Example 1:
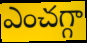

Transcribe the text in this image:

ఎంచగ్గా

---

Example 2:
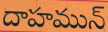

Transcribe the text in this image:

దాహమున్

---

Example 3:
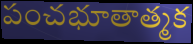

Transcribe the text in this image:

పంచభూతాత్మక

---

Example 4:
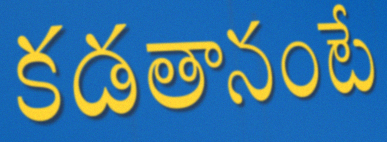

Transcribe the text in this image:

కడతానంటే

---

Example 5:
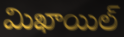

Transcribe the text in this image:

మిఖాయిల్